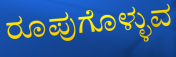
ರೂಪುಗೊಳ್ಳುವ